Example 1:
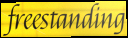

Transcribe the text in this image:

freestanding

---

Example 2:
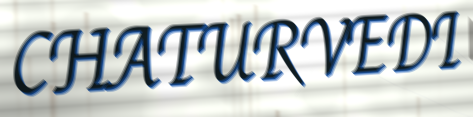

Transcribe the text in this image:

CHATURVEDI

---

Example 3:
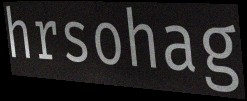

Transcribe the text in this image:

hrsohag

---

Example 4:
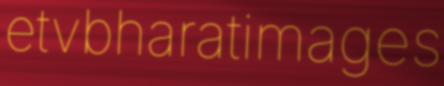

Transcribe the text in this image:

etvbharatimages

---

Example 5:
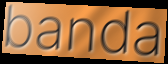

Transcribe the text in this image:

banda